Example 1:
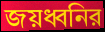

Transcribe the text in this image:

জয়ধ্বনির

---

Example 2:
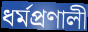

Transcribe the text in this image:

ধর্মপ্রণালী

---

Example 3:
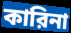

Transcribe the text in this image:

কারিনা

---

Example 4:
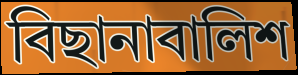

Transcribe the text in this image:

বিছানাবালিশ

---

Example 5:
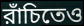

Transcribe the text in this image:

রাঁচিতেও